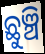
ଛୁଞ୍ଚି